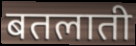
बतलाती